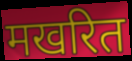
मखरित